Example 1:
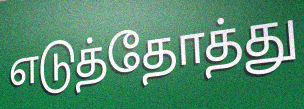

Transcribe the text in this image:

எடுத்தோத்து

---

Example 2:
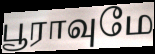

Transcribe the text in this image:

பூராவுமே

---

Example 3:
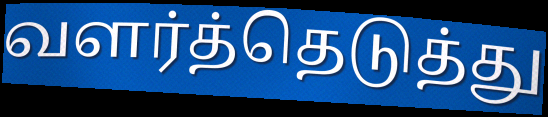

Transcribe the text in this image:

வளர்த்தெடுத்து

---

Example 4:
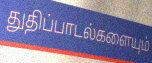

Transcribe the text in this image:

துதிப்பாடல்களையும்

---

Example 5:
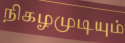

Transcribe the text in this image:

நிகழமுடியும்